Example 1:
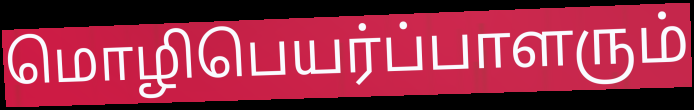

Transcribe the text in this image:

மொழிபெயர்ப்பாளரும்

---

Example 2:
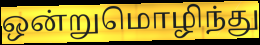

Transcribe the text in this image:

ஒன்றுமொழிந்து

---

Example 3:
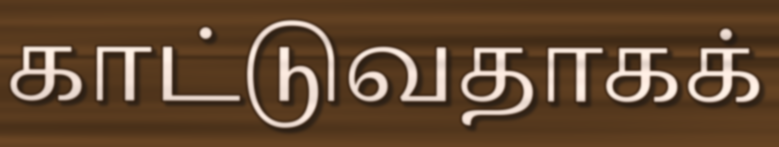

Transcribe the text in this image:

காட்டுவதாகக்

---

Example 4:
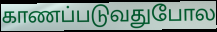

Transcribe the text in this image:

காணப்படுவதுபோல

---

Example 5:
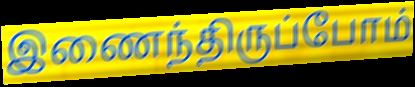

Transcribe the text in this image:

இணைந்திருப்போம்